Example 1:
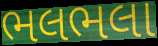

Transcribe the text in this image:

ભલભલા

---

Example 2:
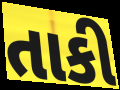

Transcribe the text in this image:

તાકી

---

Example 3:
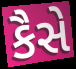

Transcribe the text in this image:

કૈસે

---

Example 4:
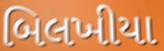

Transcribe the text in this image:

બિલખીયા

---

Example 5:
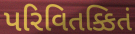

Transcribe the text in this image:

પરિવિતક્કિતં